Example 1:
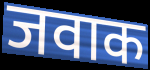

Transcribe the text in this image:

जवाक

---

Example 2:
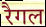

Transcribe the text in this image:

रैगल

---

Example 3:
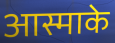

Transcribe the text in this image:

आस्माके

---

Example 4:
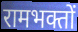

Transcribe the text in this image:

रामभक्तों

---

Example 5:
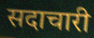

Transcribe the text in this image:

सदाचारी